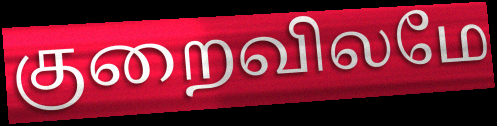
குறைவிலமே